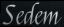
Sedem